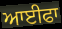
ਆਈਫਾ